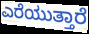
ಎರೆಯುತ್ತಾರೆ